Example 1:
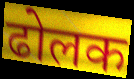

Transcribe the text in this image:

ढोलक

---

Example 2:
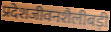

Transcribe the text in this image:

प्रदेशजीवनशैलीबड़ी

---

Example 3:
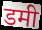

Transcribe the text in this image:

डमी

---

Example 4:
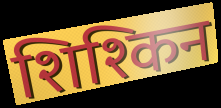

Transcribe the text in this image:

शिश्किन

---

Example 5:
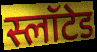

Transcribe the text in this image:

स्लॉटेड